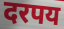
दरपय